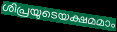
ശിപ്രയുടെയക്ഷമമാം